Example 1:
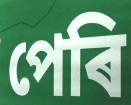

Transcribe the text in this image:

পেৰি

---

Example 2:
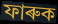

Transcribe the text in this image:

ফাৰুক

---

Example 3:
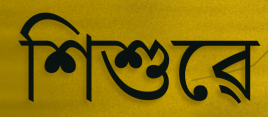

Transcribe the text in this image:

শিশুৱে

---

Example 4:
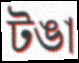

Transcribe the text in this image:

টঙা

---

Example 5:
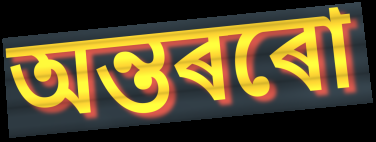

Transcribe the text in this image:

অন্তৰৰো